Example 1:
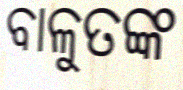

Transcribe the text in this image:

ବାଳୁତଙ୍କ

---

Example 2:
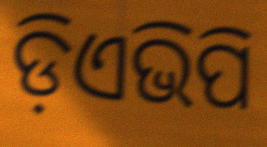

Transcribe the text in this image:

ଡ଼ିଏଭିପି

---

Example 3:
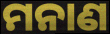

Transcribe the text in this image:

ମନାଣ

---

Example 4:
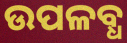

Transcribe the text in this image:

ଉପଳବ୍ଧ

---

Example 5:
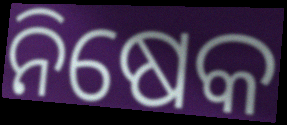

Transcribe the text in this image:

ନିଷେକ